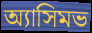
অ্যাসিমভ